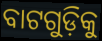
ବାଟଗୁଡ଼ିକୁ